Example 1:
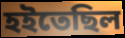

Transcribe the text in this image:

হইতেছিল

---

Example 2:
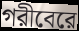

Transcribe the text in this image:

গরীবেরে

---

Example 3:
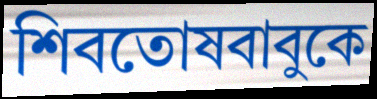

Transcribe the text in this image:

শিবতোষবাবুকে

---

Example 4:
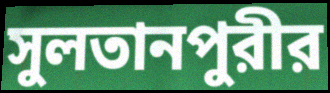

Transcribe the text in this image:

সুলতানপুরীর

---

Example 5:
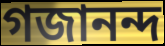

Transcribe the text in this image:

গজানন্দ